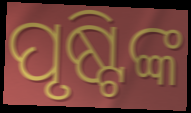
ପୃଷ୍ଟିଙ୍କ